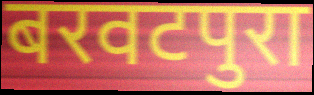
बरवटपुरा